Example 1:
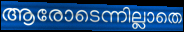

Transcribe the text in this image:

ആരോടെന്നില്ലാതെ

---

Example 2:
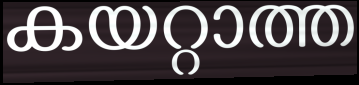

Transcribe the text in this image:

കയറ്റാത്ത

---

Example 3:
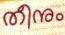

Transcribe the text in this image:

തീനും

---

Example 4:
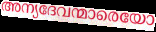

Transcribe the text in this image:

അന്യദേവന്മാരെയോ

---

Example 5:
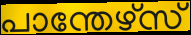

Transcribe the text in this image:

പാന്തേഴ്സ്